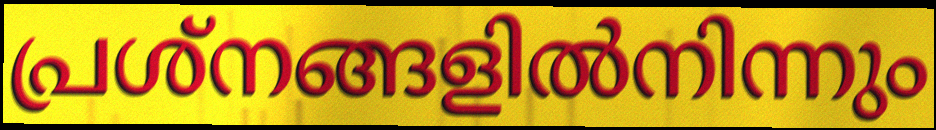
പ്രശ്നങ്ങളിൽനിന്നും